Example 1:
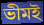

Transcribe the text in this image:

ভীমই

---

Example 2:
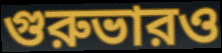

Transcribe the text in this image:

গুরুভারও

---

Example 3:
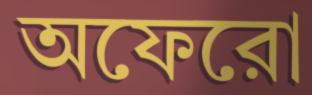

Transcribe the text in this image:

অফেরো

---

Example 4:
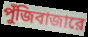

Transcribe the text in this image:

পুঁজিবাজারে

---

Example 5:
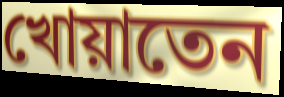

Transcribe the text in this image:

খোয়াতেন